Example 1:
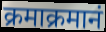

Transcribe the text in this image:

क्रमाक्रमानं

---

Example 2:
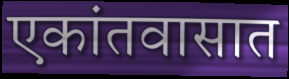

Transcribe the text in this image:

एकांतवासात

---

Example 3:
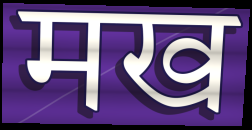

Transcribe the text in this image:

मख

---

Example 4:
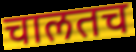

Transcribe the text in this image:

चालतच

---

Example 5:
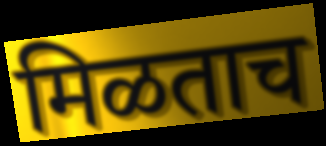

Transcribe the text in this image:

मिळताच